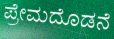
ಪ್ರೇಮದೊಡನೆ